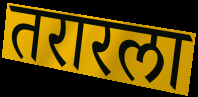
तरारला